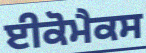
ਈਕੋਮੈਕਸ